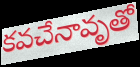
కవచేనావృతో